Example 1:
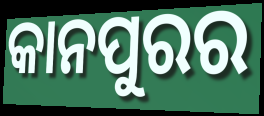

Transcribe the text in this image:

କାନପୁରର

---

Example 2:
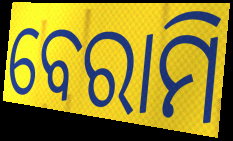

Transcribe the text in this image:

ବେରାମି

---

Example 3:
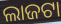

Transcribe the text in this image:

ଲାଜଟା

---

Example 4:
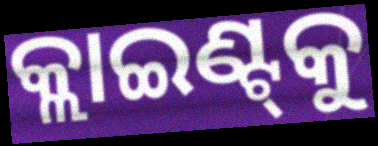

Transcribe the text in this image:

କ୍ଲାଇଣ୍ଟ୍‌କୁ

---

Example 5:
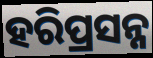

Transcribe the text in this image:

ହରିପ୍ରସନ୍ନ